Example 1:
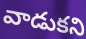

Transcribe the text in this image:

వాడుకని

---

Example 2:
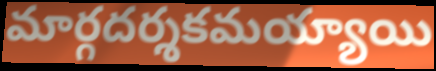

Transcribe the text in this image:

మార్గదర్శకమయ్యాయి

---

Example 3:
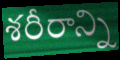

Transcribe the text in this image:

శరీరాన్ని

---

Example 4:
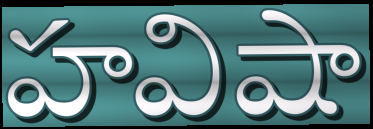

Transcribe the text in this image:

హవిషా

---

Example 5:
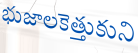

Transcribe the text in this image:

భుజాలకెత్తుకుని